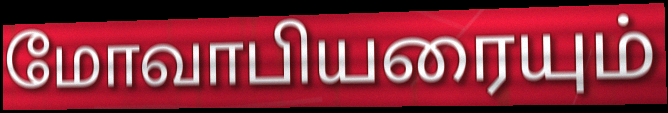
மோவாபியரையும்